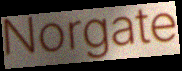
Norgate